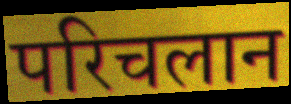
परिचलान